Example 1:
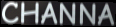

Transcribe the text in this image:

CHANNA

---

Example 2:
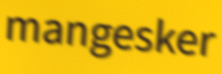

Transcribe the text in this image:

mangesker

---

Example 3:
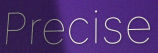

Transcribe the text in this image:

Precise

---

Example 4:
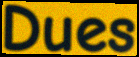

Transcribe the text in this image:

Dues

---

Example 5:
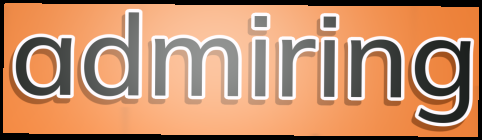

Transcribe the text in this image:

admiring